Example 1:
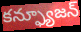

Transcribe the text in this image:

కన్ఫ్యూజన్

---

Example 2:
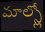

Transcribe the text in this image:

మాల్స్లో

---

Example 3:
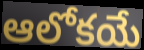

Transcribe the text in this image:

ఆలోకయే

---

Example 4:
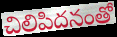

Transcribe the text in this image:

చిలిపిదనంతో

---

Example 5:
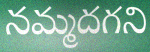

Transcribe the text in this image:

నమ్మదగని